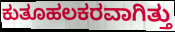
ಕುತೂಹಲಕರವಾಗಿತ್ತು